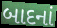
બાદનાં